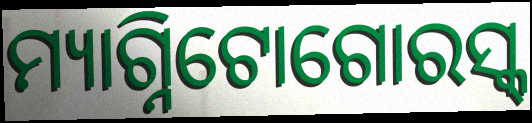
ମ୍ୟାଗ୍ନିଟୋଗୋରସ୍କ୍